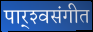
पार्श्वसंगीत